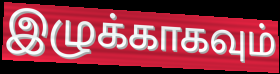
இழுக்காகவும்